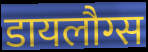
डायलौग्स